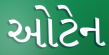
ઓટેન